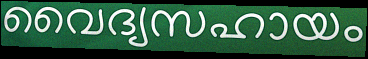
വൈദ്യസഹായം